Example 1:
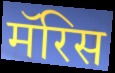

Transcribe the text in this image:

मॅरिस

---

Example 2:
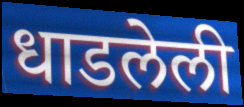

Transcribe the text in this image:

धाडलेली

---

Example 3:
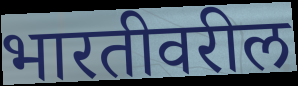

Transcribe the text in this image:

भारतीवरील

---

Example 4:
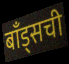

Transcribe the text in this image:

बॉंड्सची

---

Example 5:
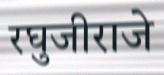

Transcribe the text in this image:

रघुजीराजे